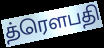
த்ரௌபதி